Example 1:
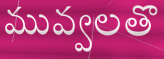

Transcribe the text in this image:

మువ్వలతొ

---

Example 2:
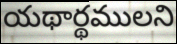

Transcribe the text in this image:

యథార్థములని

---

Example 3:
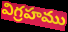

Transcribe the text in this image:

విగ్రహము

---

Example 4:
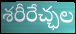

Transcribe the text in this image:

శరీరేచ్ఛల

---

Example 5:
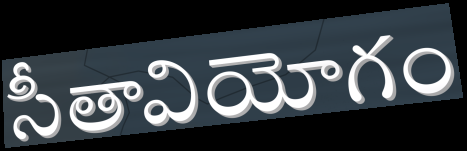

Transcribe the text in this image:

సీతావియోగం